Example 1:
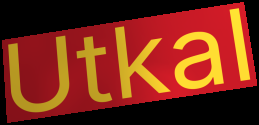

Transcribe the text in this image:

Utkal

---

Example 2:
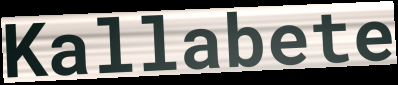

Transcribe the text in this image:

Kallabete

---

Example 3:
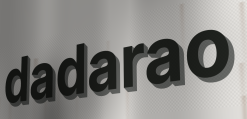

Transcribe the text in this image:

dadarao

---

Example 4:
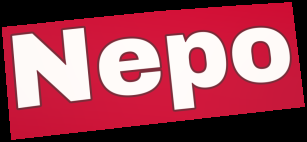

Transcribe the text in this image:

Nepo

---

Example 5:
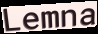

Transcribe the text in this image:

Lemna